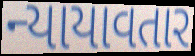
ન્યાયાવતાર